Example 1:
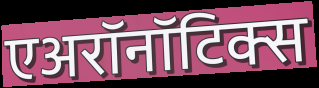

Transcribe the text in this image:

एअरॉनॉटिक्स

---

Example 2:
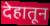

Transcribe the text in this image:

देहातून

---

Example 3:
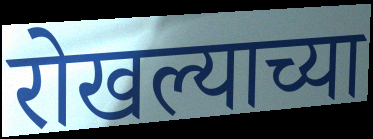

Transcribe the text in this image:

रोखल्याच्या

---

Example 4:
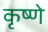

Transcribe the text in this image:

कृष्णे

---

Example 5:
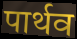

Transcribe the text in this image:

पार्थव